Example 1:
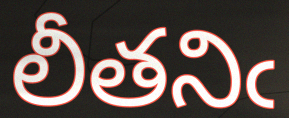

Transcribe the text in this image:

లీతనిఁ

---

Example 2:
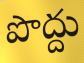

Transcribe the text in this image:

పొద్దు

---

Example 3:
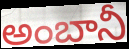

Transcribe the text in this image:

అంబానీ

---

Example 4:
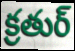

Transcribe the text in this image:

క్రతుర్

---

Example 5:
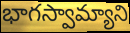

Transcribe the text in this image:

భాగస్వామ్యాని